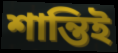
শান্তিই